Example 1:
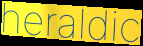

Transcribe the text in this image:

heraldic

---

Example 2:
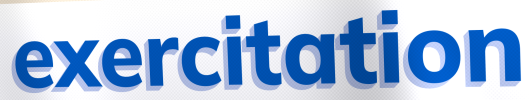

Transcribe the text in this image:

exercitation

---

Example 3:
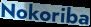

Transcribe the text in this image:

Nokoriba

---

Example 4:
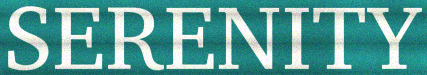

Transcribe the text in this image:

SERENITY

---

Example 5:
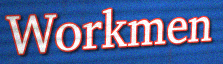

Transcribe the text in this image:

Workmen